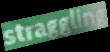
straggling